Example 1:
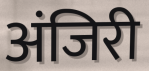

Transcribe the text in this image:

अंजिरी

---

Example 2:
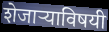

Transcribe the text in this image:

शेजाऱ्याविषयी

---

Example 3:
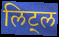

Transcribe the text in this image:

लिट्‌ल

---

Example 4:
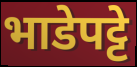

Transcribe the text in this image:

भाडेपट्टे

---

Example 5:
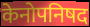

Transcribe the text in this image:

केनोपनिषद